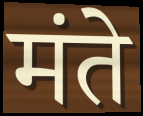
मंते